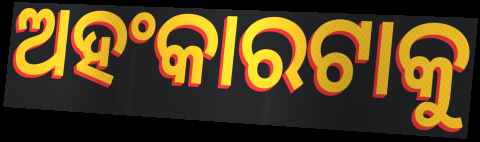
ଅହଂକାରଟାକୁ